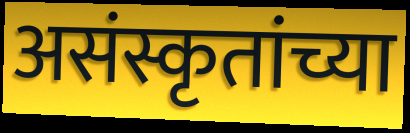
असंस्कृतांच्या